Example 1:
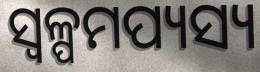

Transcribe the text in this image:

ସ୍ୱଳ୍ପମପ୍ୟସ୍ୟ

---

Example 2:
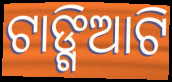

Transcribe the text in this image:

ଟାଙ୍ଗିଆଟି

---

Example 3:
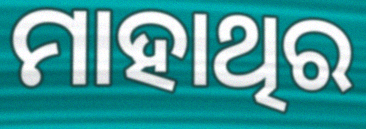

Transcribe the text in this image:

ମାହାଥିର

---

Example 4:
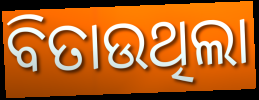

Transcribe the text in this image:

ବିତାଉଥିଲା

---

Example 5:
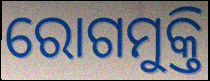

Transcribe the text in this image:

ରୋଗମୁକ୍ତି